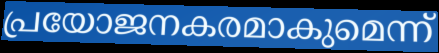
പ്രയോജനകരമാകുമെന്ന്